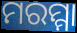
ମରମ୍ମା